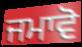
ਜਮਾਵੋ